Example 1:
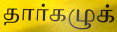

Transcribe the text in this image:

தார்கழுக்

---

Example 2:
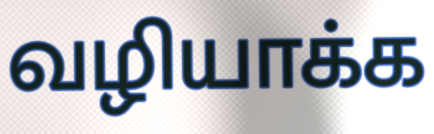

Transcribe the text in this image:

வழியாக்க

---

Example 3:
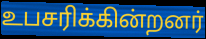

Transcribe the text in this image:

உபசரிக்கின்றனர்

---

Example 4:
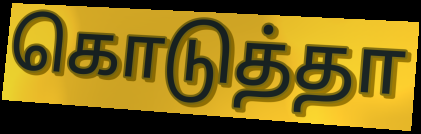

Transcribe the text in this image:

கொடுத்தா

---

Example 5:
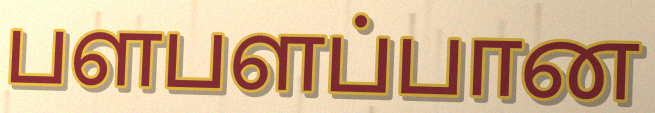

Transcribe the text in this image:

பளபளப்பான